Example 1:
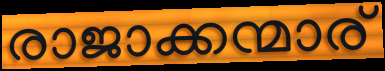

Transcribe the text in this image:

രാജാക്കന്മാര്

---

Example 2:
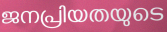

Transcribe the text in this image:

ജനപ്രിയതയുടെ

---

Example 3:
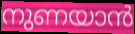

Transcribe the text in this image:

നുണയാൻ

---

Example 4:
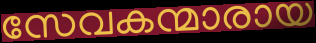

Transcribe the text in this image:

സേവകന്മാരായ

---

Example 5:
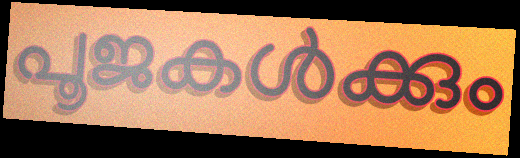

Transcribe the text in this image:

പൂജകൾക്കും